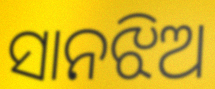
ସାନଝିଅ